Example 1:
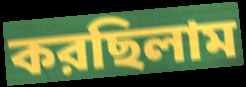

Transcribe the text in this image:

করছিলাম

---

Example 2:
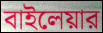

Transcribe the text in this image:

বাইলেয়ার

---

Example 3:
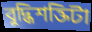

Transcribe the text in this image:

বুদ্ধিশক্তিটা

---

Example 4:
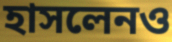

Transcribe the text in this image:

হাসলেনও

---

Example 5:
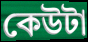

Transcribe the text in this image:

কেউটা